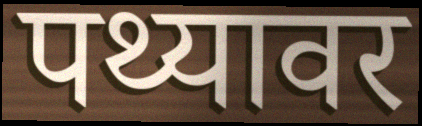
पथ्यावर